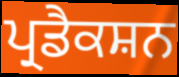
ਪ੍ਰਡੈਕਸ਼ਨ